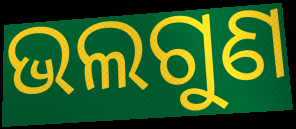
ଭଲଗୁଣ